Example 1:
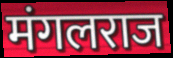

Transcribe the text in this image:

मंगलराज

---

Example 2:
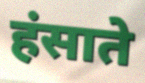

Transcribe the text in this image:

हंसाते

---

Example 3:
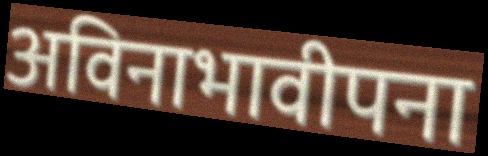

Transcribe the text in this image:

अविनाभावीपना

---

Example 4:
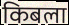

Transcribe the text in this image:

किबला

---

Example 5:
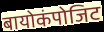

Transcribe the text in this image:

बायोकंपोजिट